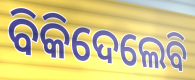
ବିକିଦେଲେବି